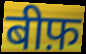
बीफ़